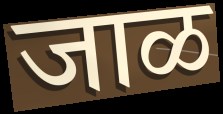
जाळ